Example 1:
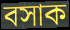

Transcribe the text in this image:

বসাক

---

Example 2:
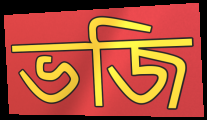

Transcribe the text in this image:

ভজি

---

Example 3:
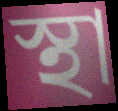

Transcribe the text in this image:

স্থা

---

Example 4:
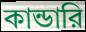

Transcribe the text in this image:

কান্ডারি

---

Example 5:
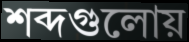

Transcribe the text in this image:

শব্দগুলোয়